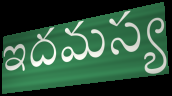
ఇదమస్య